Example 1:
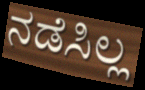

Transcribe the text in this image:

ನಡೆಸಿಲ್ಲ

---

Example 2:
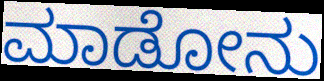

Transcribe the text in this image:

ಮಾಡೋನು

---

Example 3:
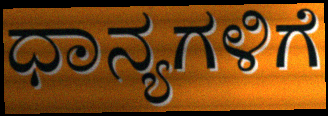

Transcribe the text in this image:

ಧಾನ್ಯಗಳಿಗೆ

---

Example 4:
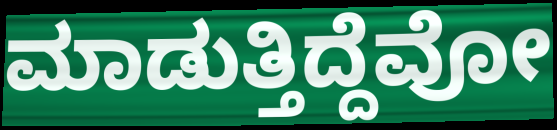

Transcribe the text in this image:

ಮಾಡುತ್ತಿದ್ದೆವೋ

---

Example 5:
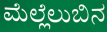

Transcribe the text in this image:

ಮೆಲ್ಲೆಲುಬಿನ